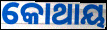
କୋଥାୟ